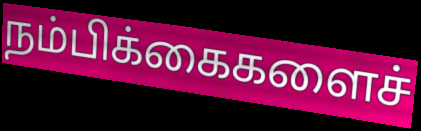
நம்பிக்கைகளைச்